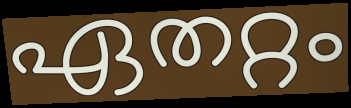
ഏതറ്റം